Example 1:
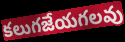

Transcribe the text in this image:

కలుగజేయగలవు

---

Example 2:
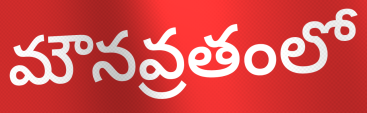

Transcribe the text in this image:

మౌనవ్రతంలో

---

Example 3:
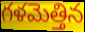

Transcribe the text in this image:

గళమెత్తిన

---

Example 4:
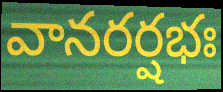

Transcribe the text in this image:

వానరర్షభః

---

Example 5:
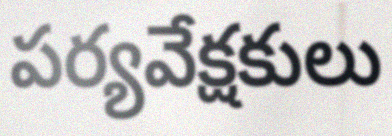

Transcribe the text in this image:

పర్యవేక్షకులు